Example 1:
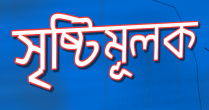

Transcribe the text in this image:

সৃষ্টিমূলক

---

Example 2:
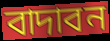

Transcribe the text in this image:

বাদাবন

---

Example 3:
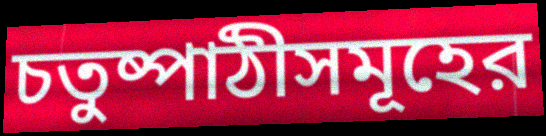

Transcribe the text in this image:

চতুষ্পাঠীসমূহের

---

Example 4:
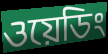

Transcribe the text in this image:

ওয়েডিং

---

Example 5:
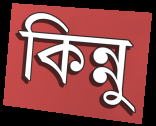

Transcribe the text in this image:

কিন্নু